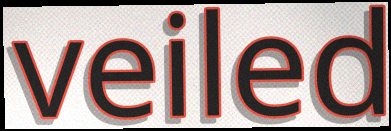
veiled